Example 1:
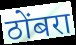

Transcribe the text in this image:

ठोंबरा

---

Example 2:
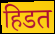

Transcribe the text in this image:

हिडत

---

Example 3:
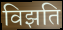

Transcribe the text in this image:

विझति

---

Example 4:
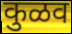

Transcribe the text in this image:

कुळव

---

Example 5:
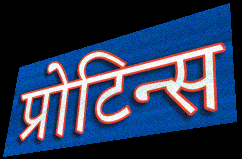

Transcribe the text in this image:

प्रोटिन्स